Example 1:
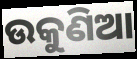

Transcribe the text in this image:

ଉକୁଣିଆ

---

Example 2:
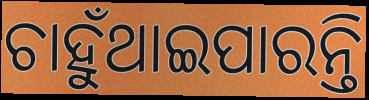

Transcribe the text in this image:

ଚାହୁଁଥାଇପାରନ୍ତି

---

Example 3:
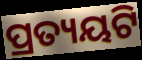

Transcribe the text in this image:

ପ୍ରତ୍ୟୟଟି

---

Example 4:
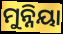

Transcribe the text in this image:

ମୁନ୍ନିୟା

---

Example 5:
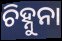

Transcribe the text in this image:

ଚିହ୍ନୁନା